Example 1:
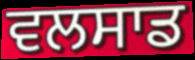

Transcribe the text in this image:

ਵਲਸਾਡ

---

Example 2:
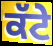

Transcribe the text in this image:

ਕੱਟੇ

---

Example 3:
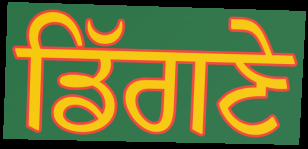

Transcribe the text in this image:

ਡਿੱਗਣੇ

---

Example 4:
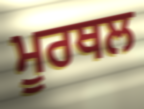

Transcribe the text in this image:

ਮੂਰਥਲ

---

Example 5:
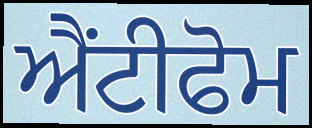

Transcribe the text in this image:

ਐਂਟੀਫੋਮ